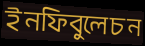
ইনফিবুলেচন